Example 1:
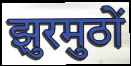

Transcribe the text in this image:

झुरमुठों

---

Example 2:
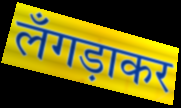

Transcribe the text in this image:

लँगड़ाकर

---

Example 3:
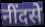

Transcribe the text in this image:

नींदसे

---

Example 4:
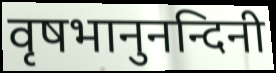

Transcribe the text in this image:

वृषभानुनन्दिनी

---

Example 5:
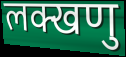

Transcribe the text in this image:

लक्खणु